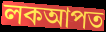
লকআপত